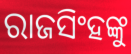
ରାଜସିଂହଙ୍କୁ